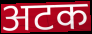
अटक